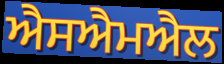
ਐਸਐਮਐਲ